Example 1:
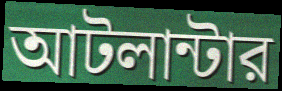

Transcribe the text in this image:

আটলান্টার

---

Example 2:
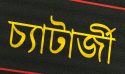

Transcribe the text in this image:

চ্যাটার্জী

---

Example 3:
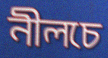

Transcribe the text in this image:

নীলচে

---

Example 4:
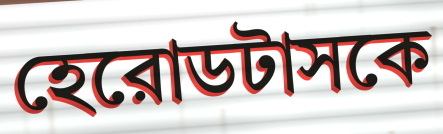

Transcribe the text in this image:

হেরোডটাসকে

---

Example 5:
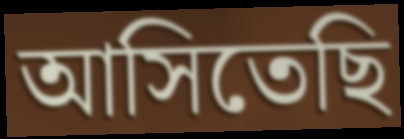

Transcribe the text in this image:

আসিতেছি